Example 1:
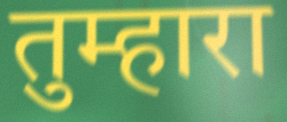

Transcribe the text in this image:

तुम्हारा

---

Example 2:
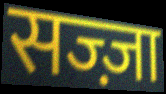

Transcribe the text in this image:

सज्ज़ा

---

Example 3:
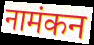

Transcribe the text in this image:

नामंकन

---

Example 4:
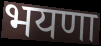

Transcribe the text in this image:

भयणा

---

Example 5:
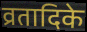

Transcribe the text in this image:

व्रतादिके